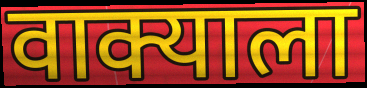
वाक्याला